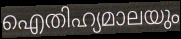
ഐതിഹ്യമാലയും